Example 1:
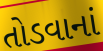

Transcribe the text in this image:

તોડવાનાં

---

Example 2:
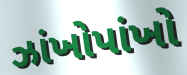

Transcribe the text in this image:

ઝાંખોપાંખો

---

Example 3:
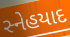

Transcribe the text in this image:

સ્નેહયાદ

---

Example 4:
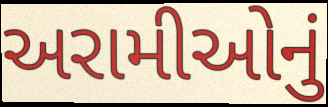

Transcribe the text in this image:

અરામીઓનું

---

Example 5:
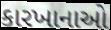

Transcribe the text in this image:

કારખાનાઓ